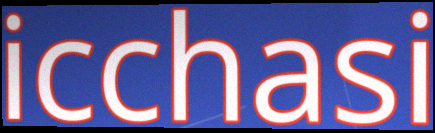
icchasi